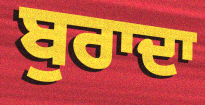
ਬੁਰਾਦਾ